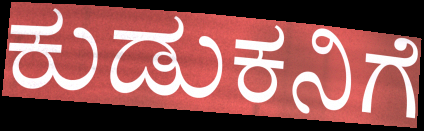
ಕುಡುಕನಿಗೆ